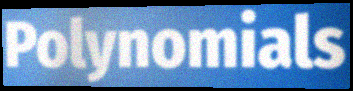
Polynomials